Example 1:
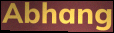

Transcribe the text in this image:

Abhang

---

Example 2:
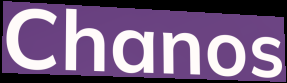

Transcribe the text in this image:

Chanos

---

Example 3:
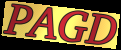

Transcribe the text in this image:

PAGD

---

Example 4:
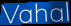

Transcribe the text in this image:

Vahal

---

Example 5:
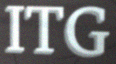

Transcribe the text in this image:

ITG